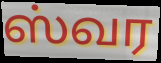
ஸ்வர